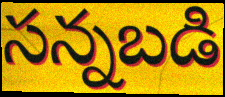
సన్నబడి